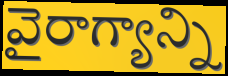
వైరాగ్యాన్ని